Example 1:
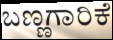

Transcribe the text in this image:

ಬಣ್ಣಗಾರಿಕೆ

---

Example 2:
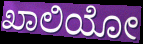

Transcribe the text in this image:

ಖಾಲಿಯೋ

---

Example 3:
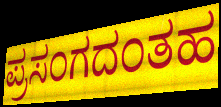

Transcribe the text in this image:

ಪ್ರಸಂಗದಂತಹ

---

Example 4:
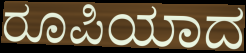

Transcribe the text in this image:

ರೂಪಿಯಾದ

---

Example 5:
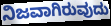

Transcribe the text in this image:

ನಿಜವಾಗಿರುವುದು